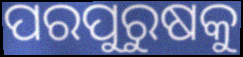
ପରପୁରୁଷକୁ